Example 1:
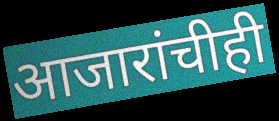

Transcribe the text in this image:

आजारांचीही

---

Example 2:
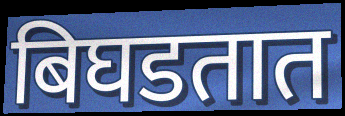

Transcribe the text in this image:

बिघडतात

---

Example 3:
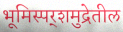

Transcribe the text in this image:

भूमिस्पर्शमुद्रेतील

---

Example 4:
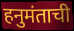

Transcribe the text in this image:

हनुमंताची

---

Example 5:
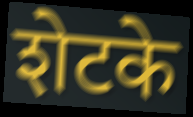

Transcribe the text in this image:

शेटके